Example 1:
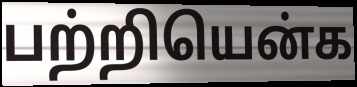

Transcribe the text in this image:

பற்றியென்க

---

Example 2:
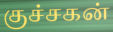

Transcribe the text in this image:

குச்சகன்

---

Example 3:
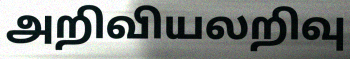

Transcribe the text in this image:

அறிவியலறிவு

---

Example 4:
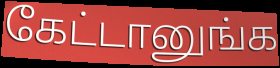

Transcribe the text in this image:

கேட்டானுங்க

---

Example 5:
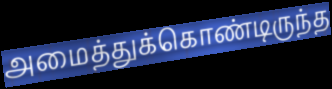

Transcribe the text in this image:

அமைத்துக்கொண்டிருந்த